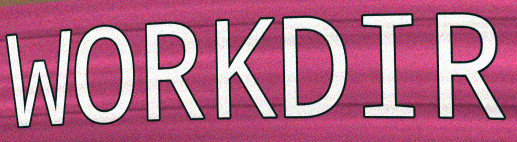
WORKDIR